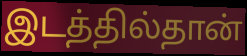
இடத்தில்தான்